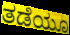
ತಡೆಯೂ